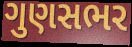
ગુણસભર